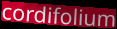
cordifolium